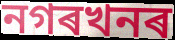
নগৰখনৰ